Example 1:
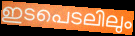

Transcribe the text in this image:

ഇടപെടലിലും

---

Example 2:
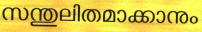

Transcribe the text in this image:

സന്തുലിതമാക്കാനും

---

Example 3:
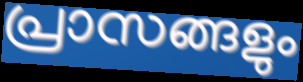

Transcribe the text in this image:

പ്രാസങ്ങളും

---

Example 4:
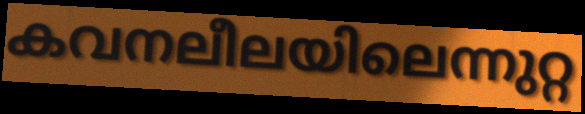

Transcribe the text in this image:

കവനലീലയിലെന്നുറ്റ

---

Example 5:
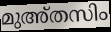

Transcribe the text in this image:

മുഅ്തസിം